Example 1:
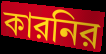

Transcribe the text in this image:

কারনির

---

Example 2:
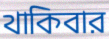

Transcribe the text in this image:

থাকিবার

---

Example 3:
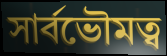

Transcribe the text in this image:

সার্বভৌমত্ব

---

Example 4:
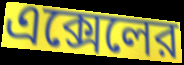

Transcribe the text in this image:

এক্সেলের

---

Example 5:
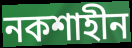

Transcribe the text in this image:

নকশাহীন